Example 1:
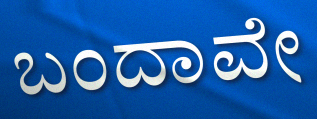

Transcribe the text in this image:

ಬಂದಾವೇ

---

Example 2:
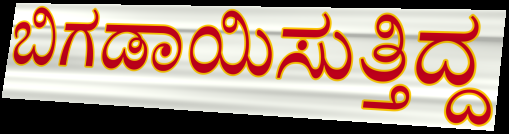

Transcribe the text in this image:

ಬಿಗಡಾಯಿಸುತ್ತಿದ್ದ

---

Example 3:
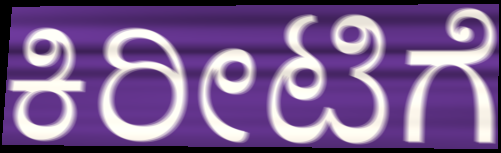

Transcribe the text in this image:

ಕಿರೀಟಿಗೆ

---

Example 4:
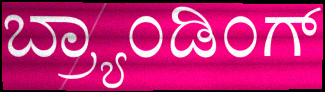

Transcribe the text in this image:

ಬ್ರ್ಯಾಂಡಿಂಗ್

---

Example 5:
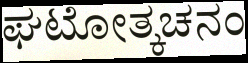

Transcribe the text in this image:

ಘಟೋತ್ಕಚನಂ